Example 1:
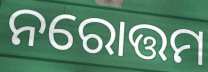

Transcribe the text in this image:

ନରୋତ୍ତମ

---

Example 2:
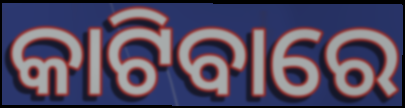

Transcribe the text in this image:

କାଟିବାରେ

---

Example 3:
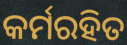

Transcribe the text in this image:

କର୍ମରହିତ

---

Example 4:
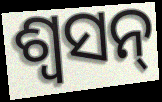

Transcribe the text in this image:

ଶ୍ୱସନ୍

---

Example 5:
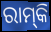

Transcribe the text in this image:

ରାମ୍‌କି